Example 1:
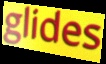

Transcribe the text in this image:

glides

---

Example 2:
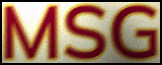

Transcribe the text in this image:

MSG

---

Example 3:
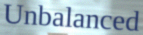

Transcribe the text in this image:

Unbalanced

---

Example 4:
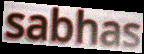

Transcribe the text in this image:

sabhas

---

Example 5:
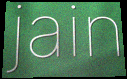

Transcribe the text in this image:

jain